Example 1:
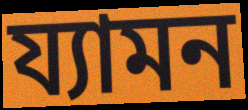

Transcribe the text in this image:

য্যামন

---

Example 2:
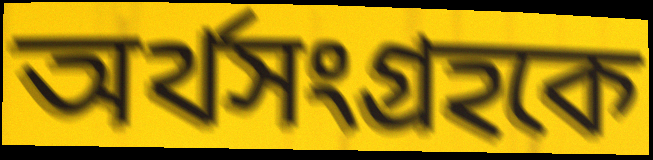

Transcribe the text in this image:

অর্থসংগ্রহকে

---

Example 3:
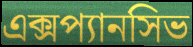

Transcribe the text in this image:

এক্সপ্যানসিভ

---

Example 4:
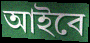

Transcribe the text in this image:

আইবে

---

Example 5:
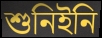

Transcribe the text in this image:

শুনিইনি